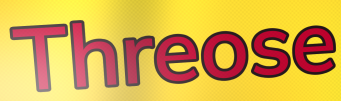
Threose